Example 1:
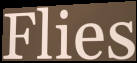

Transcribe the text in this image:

Flies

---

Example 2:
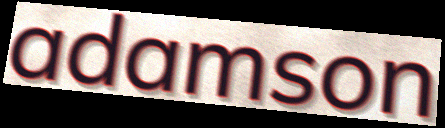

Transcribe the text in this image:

adamson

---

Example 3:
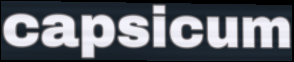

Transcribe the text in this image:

capsicum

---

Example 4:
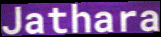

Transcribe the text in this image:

Jathara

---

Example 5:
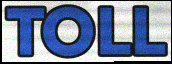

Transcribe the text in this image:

TOLL